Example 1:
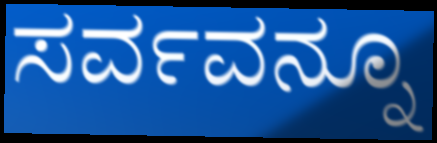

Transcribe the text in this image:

ಸರ್ವವನ್ನೂ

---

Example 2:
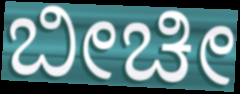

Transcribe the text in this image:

ಬೀಚೀ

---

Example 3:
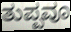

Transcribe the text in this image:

ತುಪ್ಪವೂ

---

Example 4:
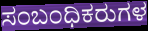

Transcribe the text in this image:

ಸಂಬಂಧಿಕರುಗಳ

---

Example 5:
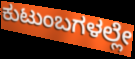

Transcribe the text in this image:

ಕುಟುಂಬಗಳಲ್ಲೇ